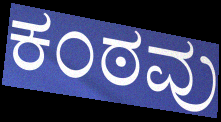
ಕಂಠವು